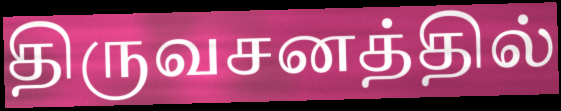
திருவசனத்தில்